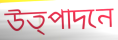
উত্পাদনে